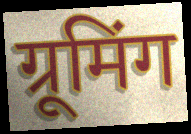
ग्रूमिंग